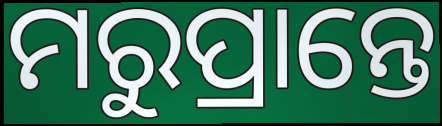
ମରୁପ୍ରାନ୍ତେ